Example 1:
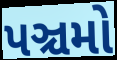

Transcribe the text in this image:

પઞ્ચમો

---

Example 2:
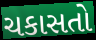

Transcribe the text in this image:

ચકાસતો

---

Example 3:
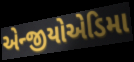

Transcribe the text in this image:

એન્જીયોએડિમા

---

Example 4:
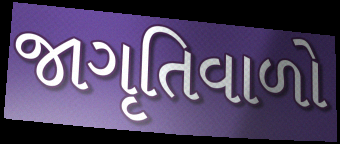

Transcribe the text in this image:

જાગૃતિવાળો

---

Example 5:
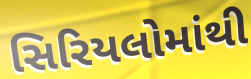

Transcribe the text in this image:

સિરિયલોમાંથી